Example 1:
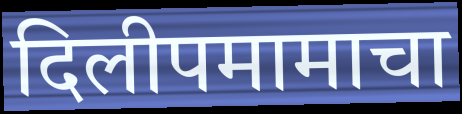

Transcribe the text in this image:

दिलीपमामाचा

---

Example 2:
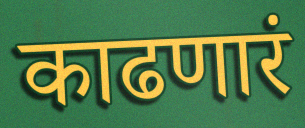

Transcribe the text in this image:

काढणारं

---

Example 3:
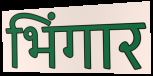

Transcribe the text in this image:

भिंगार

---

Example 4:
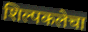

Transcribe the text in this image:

शिल्पकलेचा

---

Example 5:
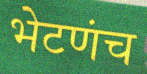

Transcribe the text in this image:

भेटणंच